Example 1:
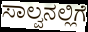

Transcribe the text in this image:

ಸಾಲ್ವನಲ್ಲಿಗೆ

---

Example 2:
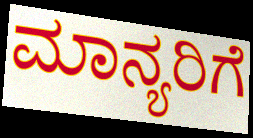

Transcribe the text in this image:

ಮಾನ್ಯರಿಗೆ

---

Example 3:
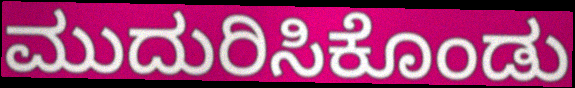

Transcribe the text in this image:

ಮುದುರಿಸಿಕೊಂಡು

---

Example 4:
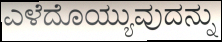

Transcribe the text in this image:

ಎಳೆದೊಯ್ಯುವುದನ್ನು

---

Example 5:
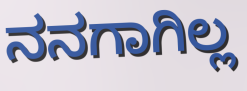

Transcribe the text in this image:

ನನಗಾಗಿಲ್ಲ